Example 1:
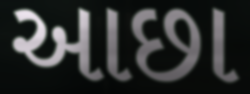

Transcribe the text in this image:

આછા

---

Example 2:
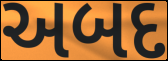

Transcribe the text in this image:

અબદ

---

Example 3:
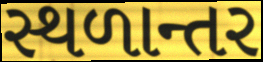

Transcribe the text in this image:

સ્થળાન્તર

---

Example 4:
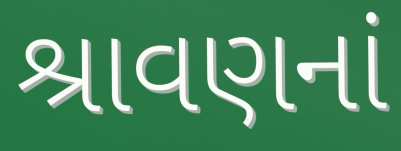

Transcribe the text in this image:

શ્રાવણનાં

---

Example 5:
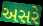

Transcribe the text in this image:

અસરે